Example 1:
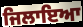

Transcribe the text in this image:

ਜਿਲਾਇਆ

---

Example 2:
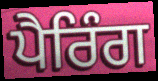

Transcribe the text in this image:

ਪੈਰਿੰਗ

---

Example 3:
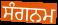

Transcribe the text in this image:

ਸੰਗਨਮ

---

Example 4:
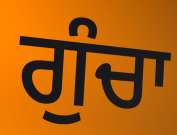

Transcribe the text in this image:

ਗੁੰਚਾ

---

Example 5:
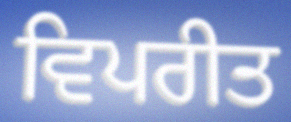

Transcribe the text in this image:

ਵਿਪਰੀਤ